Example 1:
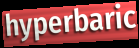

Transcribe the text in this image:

hyperbaric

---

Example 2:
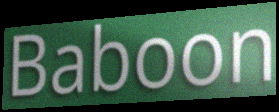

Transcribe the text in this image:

Baboon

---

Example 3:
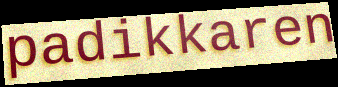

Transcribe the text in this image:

padikkaren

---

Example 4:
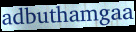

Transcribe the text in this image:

adbuthamgaa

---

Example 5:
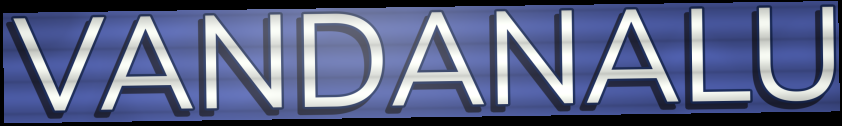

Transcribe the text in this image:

VANDANALU